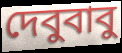
দেবুবাবু